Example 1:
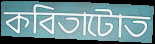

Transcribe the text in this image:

কবিতাটোত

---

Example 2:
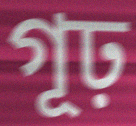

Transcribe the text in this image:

গূঢ়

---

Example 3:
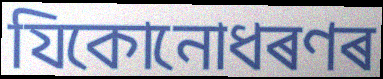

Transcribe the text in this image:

যিকোনোধৰণৰ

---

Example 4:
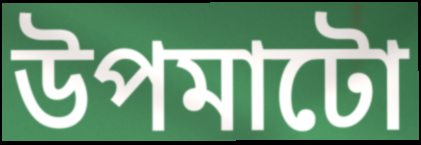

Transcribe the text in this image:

উপমাটো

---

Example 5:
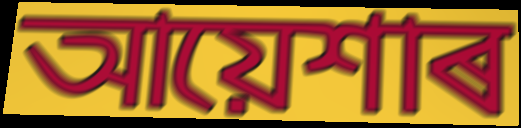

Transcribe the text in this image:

আয়েশাৰ